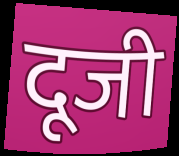
दूजी